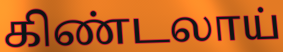
கிண்டலாய்